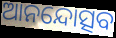
ଆନନ୍ଦୋତ୍ସବ